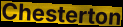
Chesterton